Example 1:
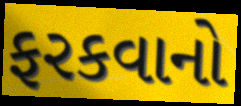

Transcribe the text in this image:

ફરકવાનો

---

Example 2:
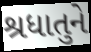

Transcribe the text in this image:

શ્રધાતુને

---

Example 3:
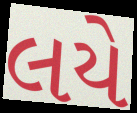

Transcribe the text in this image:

લયે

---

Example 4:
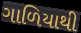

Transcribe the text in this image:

ગાળિયાથી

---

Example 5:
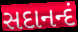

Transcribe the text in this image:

સદાનન્દં